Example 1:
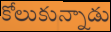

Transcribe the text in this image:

కోలుకున్నాడు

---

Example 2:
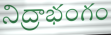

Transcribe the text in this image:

నిద్రాభంగం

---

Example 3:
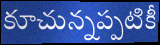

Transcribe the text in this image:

కూచున్నప్పటికీ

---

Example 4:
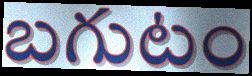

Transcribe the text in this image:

బగుటం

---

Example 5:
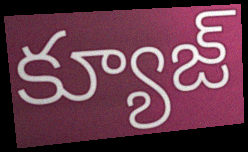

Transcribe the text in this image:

క్యూజ్